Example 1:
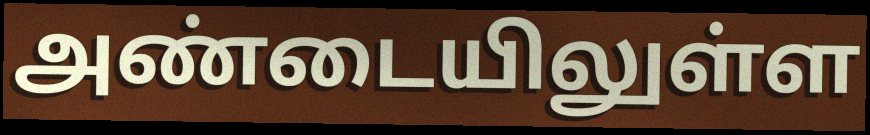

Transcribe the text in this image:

அண்டையிலுள்ள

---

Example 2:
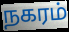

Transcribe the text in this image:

நகரம்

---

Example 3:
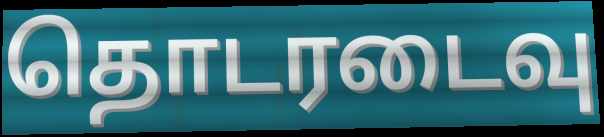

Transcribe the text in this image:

தொடரடைவு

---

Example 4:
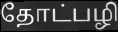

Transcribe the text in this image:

தோட்பழி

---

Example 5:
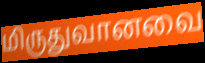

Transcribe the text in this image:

மிருதுவானவை